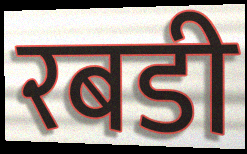
रबडी